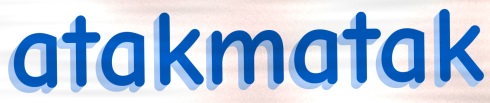
atakmatak